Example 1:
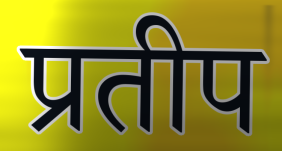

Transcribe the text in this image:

प्रतीप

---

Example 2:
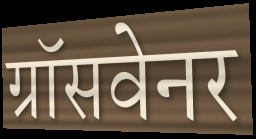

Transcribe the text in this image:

ग्रॉसवेनर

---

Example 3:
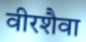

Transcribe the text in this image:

वीरशैवा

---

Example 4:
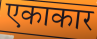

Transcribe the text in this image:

एकाकार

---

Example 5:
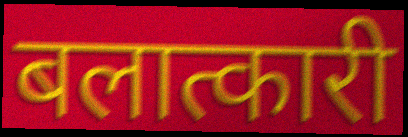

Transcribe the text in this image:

बलात्कारी